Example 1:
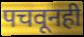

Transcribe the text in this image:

पचवूनही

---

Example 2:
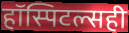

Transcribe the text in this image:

हॉस्पिटल्सही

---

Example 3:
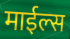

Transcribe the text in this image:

माईल्स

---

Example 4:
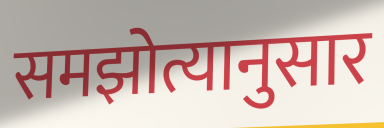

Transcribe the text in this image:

समझोत्यानुसार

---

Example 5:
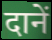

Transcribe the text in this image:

दानें